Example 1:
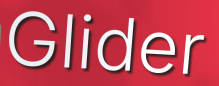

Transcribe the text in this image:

Glider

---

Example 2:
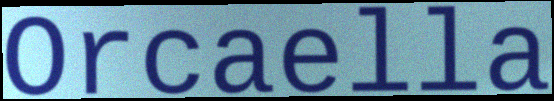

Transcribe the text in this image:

Orcaella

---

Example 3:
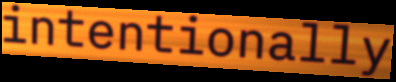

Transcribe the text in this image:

intentionally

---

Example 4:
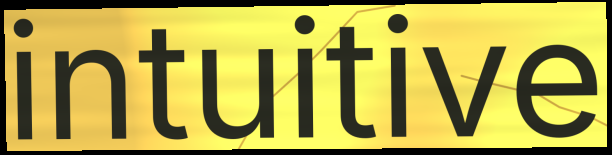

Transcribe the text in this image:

intuitive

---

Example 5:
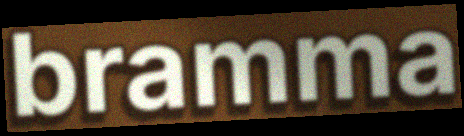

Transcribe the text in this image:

bramma